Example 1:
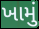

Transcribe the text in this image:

ખામું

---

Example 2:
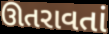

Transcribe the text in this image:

ઊતરાવતાં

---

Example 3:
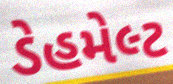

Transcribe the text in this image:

ડેહમેલ્ટ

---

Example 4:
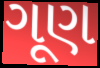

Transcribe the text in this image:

ગૂણ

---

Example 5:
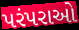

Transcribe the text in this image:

પરંપરાઓ